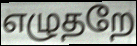
எழுதறே